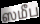
ஸமீப